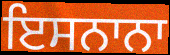
ਇਸਨਾਨਾ